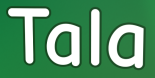
Tala